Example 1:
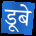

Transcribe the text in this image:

डूबे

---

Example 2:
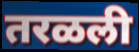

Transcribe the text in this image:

तरळली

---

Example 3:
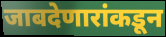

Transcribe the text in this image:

जाबदेणारांकडून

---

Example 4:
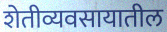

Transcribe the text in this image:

शेतीव्यवसायातील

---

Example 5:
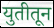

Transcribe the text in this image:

युतीतून